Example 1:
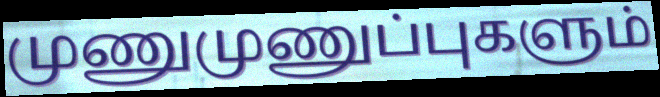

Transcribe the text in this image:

முணுமுணுப்புகளும்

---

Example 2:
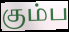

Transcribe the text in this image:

கும்ப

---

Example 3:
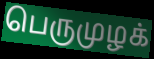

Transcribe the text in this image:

பெருமுழக்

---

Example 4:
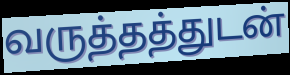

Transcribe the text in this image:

வருத்தத்துடன்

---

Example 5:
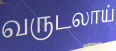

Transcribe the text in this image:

வருடலாய்